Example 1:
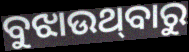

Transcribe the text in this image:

ବୁଝାଉଥ୍‌ବାରୁ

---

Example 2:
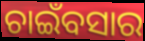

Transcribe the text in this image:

ଚାଇଁବସାର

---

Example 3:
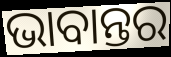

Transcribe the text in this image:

ଭାବାନ୍ତର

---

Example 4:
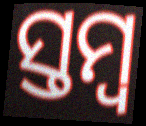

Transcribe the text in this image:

ସ୍ତମ୍ଵ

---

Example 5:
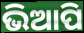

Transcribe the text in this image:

ଭିଆପି